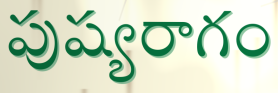
పుష్యరాగం